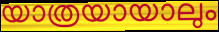
യാത്രയായാലും